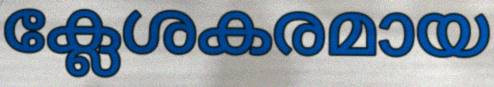
ക്ലേശകരമായ